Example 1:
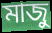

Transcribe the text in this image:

মাজু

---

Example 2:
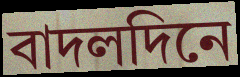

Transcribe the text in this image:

বাদলদিনে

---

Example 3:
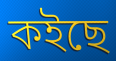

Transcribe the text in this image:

কইছে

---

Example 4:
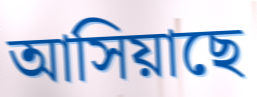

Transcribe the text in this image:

আসিয়াছে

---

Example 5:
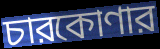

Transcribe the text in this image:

চারকোণার